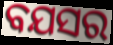
ବଯସର